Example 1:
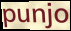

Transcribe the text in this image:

punjo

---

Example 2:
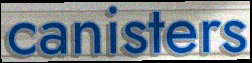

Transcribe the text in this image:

canisters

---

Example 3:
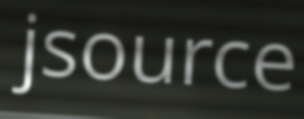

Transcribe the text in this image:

jsource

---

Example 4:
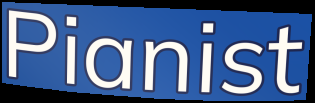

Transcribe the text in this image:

Pianist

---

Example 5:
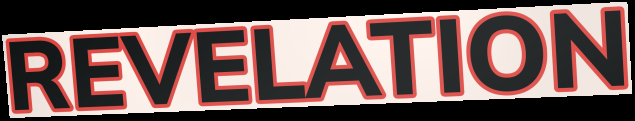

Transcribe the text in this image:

REVELATION